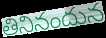
తినినందున